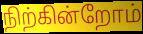
நிற்கின்றோம்